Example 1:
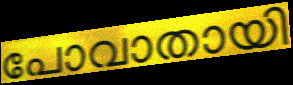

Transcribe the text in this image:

പോവാതായി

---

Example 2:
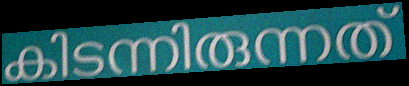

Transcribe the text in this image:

കിടന്നിരുന്നത്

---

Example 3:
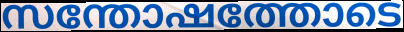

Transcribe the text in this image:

സന്തോഷത്തോടെ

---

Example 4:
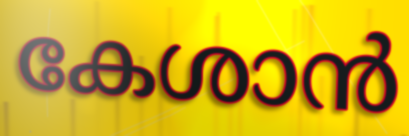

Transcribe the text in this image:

കേശാൻ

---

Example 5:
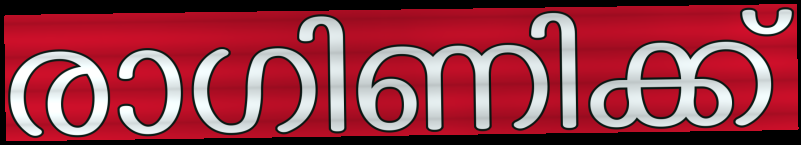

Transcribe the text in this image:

രാഗിണിക്ക്